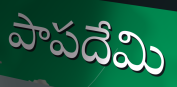
పాపదేమి